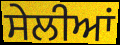
ਸੇਲੀਆਂ